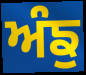
ਅੰਙੁ